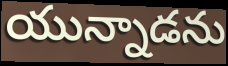
యున్నాడను